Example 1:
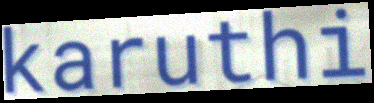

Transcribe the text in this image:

karuthi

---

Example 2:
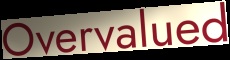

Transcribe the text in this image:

Overvalued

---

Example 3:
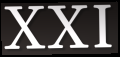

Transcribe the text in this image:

XXI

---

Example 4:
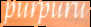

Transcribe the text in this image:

purpuru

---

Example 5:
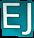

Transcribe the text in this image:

EJ